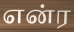
என்ர